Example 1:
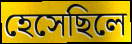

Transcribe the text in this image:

হেসেছিলে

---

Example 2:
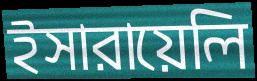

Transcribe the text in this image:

ইসারায়েলি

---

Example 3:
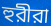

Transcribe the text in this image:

হুরীরা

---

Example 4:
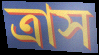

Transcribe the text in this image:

ত্রাস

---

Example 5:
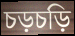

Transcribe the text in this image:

চড়চড়ি